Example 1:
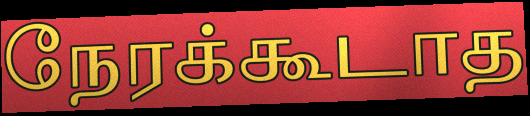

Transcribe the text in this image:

நேரக்கூடாத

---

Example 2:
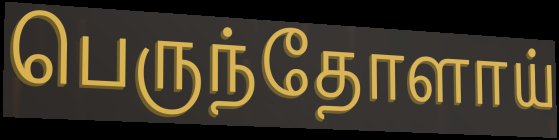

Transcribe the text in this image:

பெருந்தோளாய்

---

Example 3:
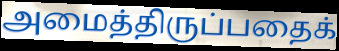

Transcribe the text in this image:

அமைத்திருப்பதைக்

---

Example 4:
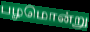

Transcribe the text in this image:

பழமொன்று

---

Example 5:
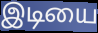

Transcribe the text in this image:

இடியை